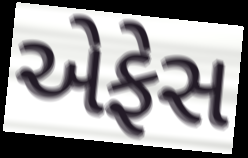
એફેસ